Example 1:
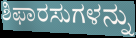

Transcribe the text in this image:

ಶಿಫಾರಸುಗಳನ್ನು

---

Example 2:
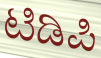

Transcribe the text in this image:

ಟಿಡಿಪಿ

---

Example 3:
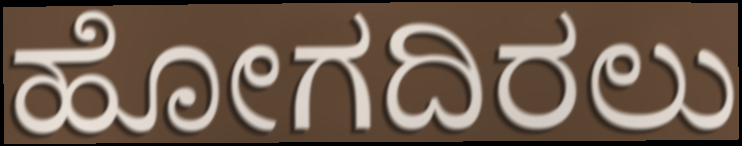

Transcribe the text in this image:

ಹೋಗದಿರಲು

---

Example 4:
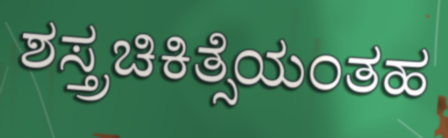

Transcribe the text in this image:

ಶಸ್ತ್ರಚಿಕಿತ್ಸೆಯಂತಹ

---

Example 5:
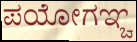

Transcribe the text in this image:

ಪಯೋಗಞ್ಚ